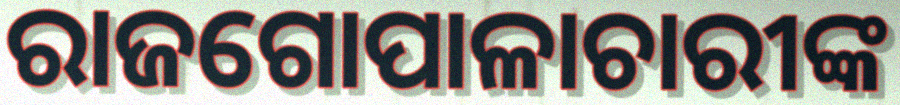
ରାଜଗୋପାଳାଚାରୀଙ୍କ